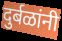
दुर्बळांनी